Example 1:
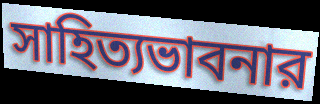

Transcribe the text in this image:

সাহিত্যভাবনার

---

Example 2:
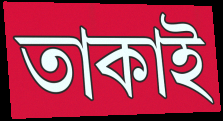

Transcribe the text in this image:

তাকাই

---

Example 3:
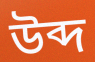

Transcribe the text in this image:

উব্দ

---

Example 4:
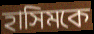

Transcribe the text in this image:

হাসিমকে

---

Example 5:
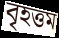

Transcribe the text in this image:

বৃহত্তম